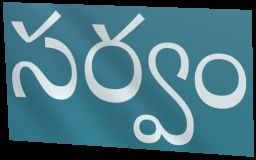
సర్వం